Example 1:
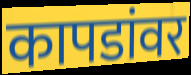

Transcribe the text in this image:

कापडांवर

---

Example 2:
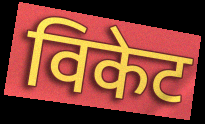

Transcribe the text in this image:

विकेट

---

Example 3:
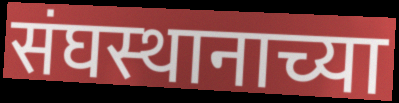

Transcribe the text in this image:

संघस्थानाच्या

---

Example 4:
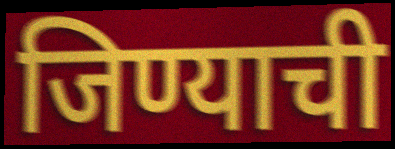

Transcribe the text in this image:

जिण्याची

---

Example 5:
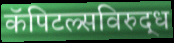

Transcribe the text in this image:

कॅपिटल्सविरुद्ध